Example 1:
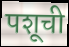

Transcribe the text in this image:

पशूची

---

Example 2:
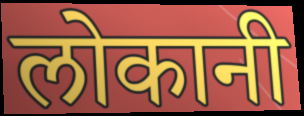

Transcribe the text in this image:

लोकानी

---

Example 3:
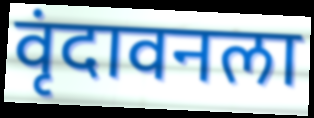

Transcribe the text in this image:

वृंदावनला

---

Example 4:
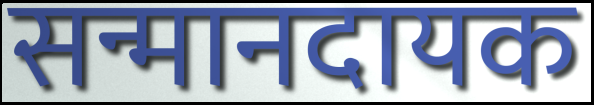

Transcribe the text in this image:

सन्मानदायक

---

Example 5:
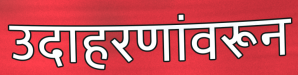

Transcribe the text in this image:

उदाहरणांवरून